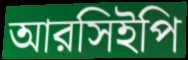
আরসিইপি